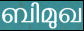
ബിമുഖ